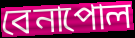
বেনাপোল